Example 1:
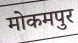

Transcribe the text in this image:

मोकमपुर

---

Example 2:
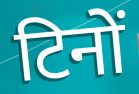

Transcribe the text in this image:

टिनों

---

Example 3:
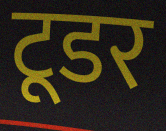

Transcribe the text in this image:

टूडर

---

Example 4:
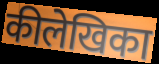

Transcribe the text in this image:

कीलेखिका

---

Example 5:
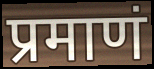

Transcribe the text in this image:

प्रमाणं